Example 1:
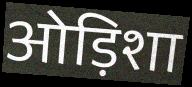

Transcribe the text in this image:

ओड़िशा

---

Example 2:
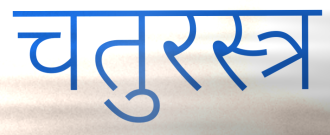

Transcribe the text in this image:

चतुरस्त्र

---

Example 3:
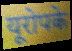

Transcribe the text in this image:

यूरोपके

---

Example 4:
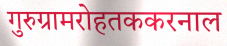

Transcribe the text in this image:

गुरुग्रामरोहतककरनाल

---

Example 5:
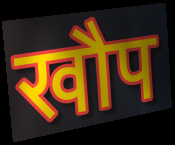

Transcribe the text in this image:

खौप